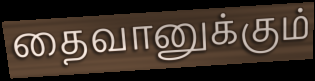
தைவானுக்கும்